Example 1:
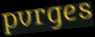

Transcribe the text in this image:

purges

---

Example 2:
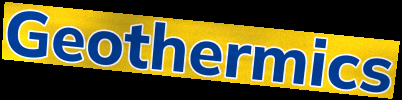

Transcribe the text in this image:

Geothermics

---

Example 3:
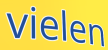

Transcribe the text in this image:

vielen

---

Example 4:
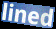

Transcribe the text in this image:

lined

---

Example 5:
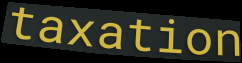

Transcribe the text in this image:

taxation